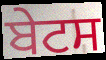
ਬੇਟਸ